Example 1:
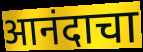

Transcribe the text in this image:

आनंदाचा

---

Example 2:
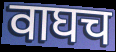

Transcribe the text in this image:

वाघच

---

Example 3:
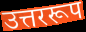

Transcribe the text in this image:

उत्तररूप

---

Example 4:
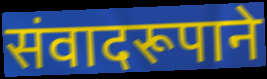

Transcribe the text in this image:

संवादरूपाने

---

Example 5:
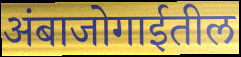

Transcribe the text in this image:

अंबाजोगाईतील